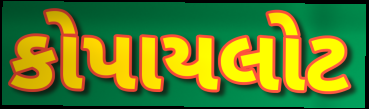
કોપાયલોટ